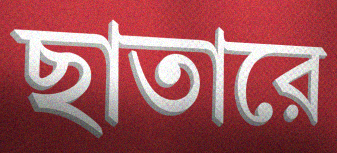
ছাতারে